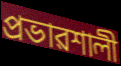
প্ৰভাৱশালী